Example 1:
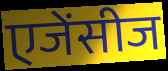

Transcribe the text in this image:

एजेंसीज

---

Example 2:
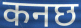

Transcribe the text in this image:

कनछ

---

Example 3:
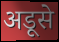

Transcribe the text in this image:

अडूसे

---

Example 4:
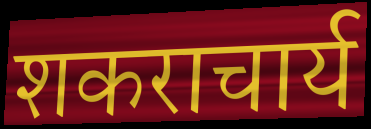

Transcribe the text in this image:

शकराचार्य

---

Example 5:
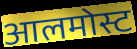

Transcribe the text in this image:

आलमोस्ट